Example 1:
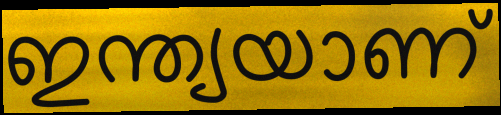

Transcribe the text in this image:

ഇന്ത്യയാണ്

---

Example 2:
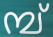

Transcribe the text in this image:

മ്പ്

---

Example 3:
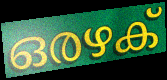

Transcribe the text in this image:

ഒരഴക്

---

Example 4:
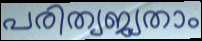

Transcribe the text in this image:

പരിത്യജ്യതാം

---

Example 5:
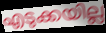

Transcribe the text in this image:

എടുക്കയില്ല